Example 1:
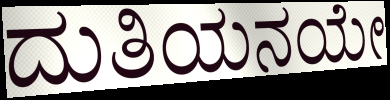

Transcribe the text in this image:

ದುತಿಯನಯೇ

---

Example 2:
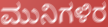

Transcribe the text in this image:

ಮುನಿಗಳಿರ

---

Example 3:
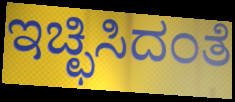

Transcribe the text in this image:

ಇಚ್ಛಿಸಿದಂತೆ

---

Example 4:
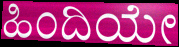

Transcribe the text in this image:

ಹಿಂದಿಯೇ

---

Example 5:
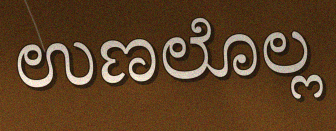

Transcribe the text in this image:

ಉಣಲೊಲ್ಲ